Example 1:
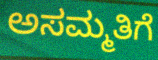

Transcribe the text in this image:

ಅಸಮ್ಮತಿಗೆ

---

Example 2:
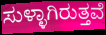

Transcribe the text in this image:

ಸುಳ್ಳಾಗಿರುತ್ತವೆ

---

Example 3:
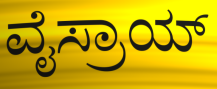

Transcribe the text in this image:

ವೈಸ್ರಾಯ್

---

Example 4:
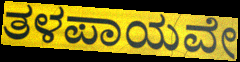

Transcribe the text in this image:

ತಳಪಾಯವೇ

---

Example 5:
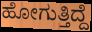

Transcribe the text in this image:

ಹೋಗುತ್ತಿದ್ದೆ